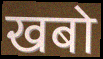
खबो